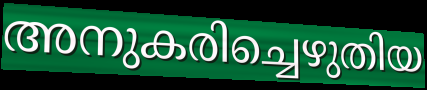
അനുകരിച്ചെഴുതിയ